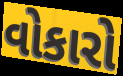
વોકારો